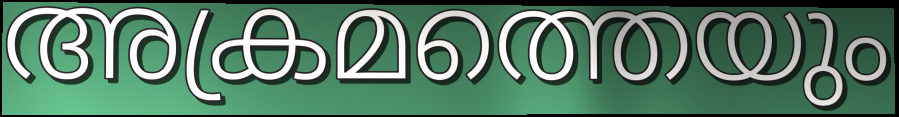
അക്രമത്തെയും